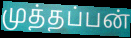
முத்தப்பன்